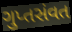
ગુપ્તસંવત